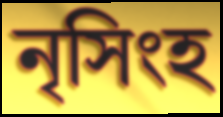
নৃসিংহ